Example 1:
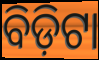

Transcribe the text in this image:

ବିଡ଼ିଟା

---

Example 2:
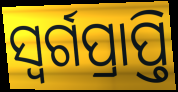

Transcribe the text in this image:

ସ୍ୱର୍ଗପ୍ରାପ୍ତି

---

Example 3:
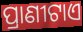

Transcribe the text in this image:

ପ୍ରାଣୀଟାଏ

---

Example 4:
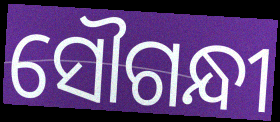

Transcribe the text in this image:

ସୌଗନ୍ଧୀ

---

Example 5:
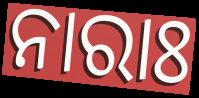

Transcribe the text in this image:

ନାରାଃ